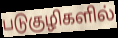
படுகுழிகளில்